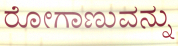
ರೋಗಾಣುವನ್ನು